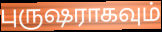
புருஷராகவும்